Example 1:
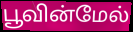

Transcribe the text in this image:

பூவின்மேல்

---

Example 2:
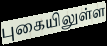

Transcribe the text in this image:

புகையிலுள்ள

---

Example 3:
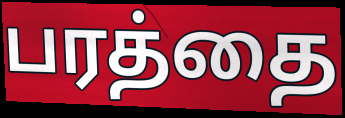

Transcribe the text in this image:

பரத்தை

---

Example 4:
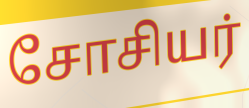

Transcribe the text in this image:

சோசியர்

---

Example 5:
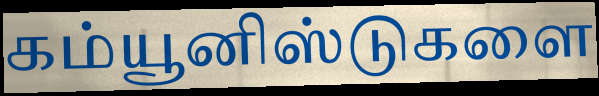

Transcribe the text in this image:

கம்யூனிஸ்டுகளை